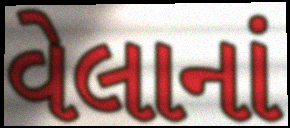
વેલાનાં